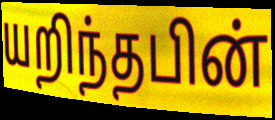
யறிந்தபின்